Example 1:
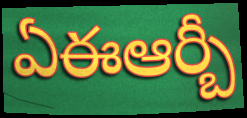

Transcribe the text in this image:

ఏఈఆర్బీ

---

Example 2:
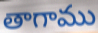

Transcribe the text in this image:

తాగాము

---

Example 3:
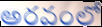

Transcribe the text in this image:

అరవంలో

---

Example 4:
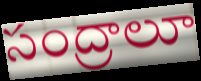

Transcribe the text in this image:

సంద్రాలూ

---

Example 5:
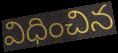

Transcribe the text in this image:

విధించిన